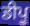
ਡੀਪੂ